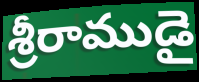
శ్రీరాముడై